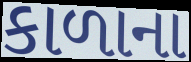
કાળાના